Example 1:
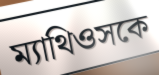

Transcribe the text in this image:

ম্যাথিওসকে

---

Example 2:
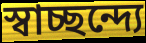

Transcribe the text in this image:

স্বাচ্ছন্দ্যে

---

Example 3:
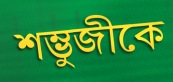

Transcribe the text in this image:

শম্ভুজীকে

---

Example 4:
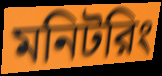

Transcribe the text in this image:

মনিটরিং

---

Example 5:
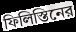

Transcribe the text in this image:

ফিলিস্তিনের